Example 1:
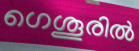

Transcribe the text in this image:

ഗെശൂരിൽ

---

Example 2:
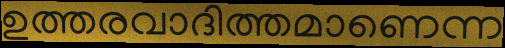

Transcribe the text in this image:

ഉത്തരവാദിത്തമാണെന്ന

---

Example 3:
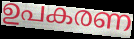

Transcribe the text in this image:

ഉപകരണ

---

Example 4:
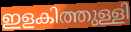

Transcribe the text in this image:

ഇളകിത്തുള്ളി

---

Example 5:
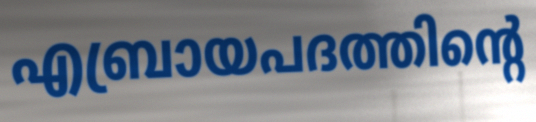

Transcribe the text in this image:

എബ്രായപദത്തിന്റെ